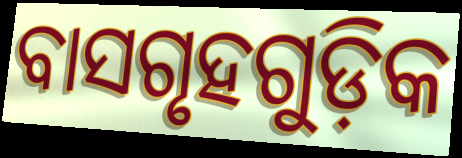
ବାସଗୃହଗୁଡ଼ିକ